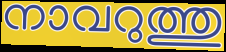
നാവറുത്തു